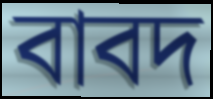
বাবদ